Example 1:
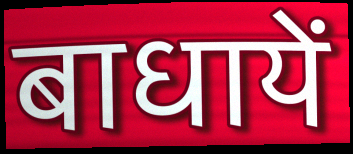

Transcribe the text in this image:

बाधायें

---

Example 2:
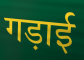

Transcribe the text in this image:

गड़ाई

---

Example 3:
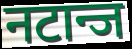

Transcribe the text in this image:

नटान्ज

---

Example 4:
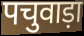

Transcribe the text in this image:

पचुवाड़ा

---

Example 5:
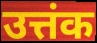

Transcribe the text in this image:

उत्तंक